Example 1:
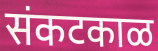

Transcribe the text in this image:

संकटकाळ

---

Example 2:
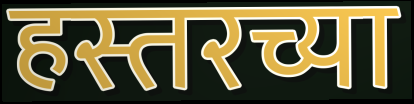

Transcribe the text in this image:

हस्तरच्या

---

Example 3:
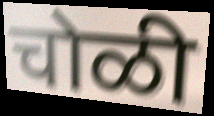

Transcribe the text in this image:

चोळी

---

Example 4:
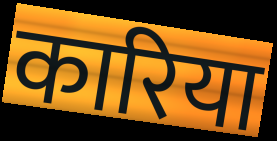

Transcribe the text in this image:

कारिया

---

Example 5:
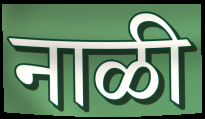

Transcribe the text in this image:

नाळी